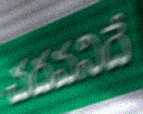
చదవనిదే